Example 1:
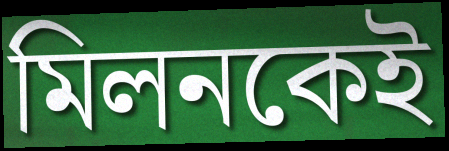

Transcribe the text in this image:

মিলনকেই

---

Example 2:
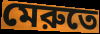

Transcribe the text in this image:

মেরুতে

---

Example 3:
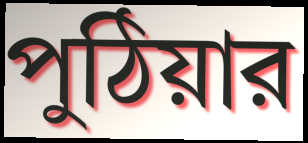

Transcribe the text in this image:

পুঠিয়ার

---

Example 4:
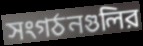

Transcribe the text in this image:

সংগঠনগুলির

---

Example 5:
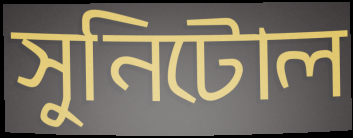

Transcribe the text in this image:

সুনিটোল